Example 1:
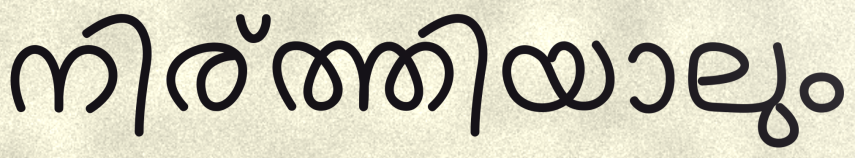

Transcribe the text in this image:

നിര്ത്തിയാലും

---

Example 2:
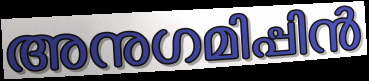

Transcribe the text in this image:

അനുഗമിപ്പിൻ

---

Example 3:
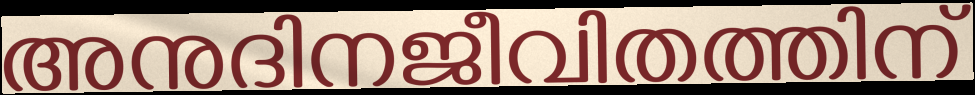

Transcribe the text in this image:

അനുദിനജീവിതത്തിന്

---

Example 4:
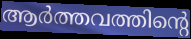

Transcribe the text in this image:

ആർത്തവത്തിന്റെ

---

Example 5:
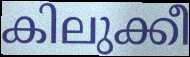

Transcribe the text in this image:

കിലുക്കീ